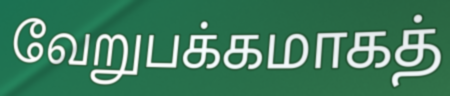
வேறுபக்கமாகத்